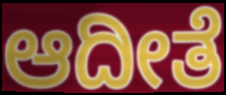
ಆದೀತೆ